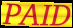
PAID